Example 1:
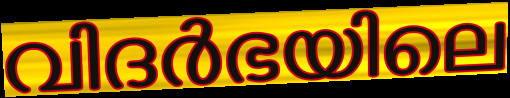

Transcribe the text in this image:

വിദർഭയിലെ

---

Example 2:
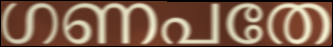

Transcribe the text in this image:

ഗണപതേ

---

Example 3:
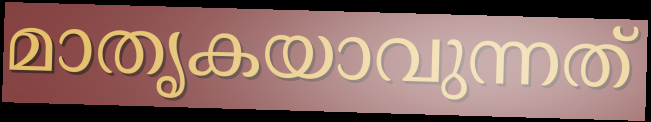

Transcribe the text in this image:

മാതൃകയാവുന്നത്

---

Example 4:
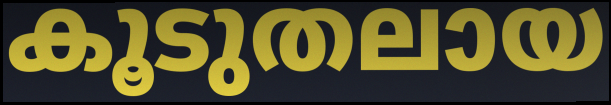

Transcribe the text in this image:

കൂടുതലായ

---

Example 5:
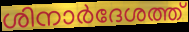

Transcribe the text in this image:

ശിനാർദേശത്ത്